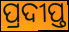
ପ୍ରଦୀପ୍ତ